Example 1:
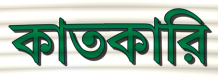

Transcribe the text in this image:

কাতকারি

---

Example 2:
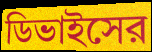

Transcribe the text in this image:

ডিভাইসের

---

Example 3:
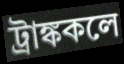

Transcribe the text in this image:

ট্রাঙ্ককলে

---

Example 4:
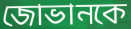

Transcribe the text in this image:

জোভানকে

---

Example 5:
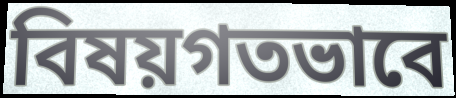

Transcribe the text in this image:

বিষয়গতভাবে